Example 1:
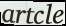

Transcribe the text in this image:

artcle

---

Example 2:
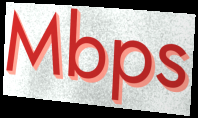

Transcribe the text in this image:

Mbps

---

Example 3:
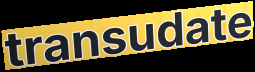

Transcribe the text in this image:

transudate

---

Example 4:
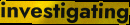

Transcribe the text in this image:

investigating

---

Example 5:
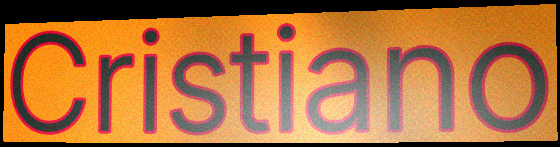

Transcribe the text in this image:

Cristiano